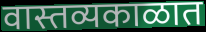
वास्तव्यकाळात